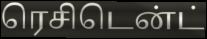
ரெசிடென்ட்